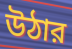
উঠার